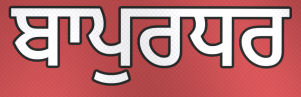
ਬਾਪੁਰਧਰ